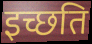
इच्छति